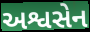
અશ્વસેન